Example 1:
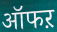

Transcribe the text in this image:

ऑफऱ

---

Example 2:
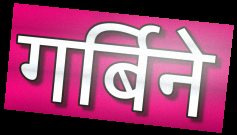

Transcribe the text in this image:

गर्बिने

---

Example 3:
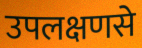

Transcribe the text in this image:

उपलक्षणसे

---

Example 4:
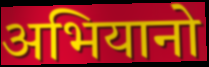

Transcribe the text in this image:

अभियानो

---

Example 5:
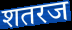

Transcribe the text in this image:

शतरज